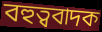
বহুত্ববাদক